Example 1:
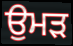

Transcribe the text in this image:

ਉਮੜ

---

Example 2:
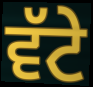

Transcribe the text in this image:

ਵੱਟੇ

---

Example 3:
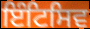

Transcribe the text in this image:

ਇੰਟਿਸਿਵ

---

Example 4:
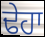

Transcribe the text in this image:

ਢੇਹਾ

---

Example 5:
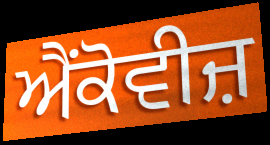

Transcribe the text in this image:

ਐਂਕੋਵੀਜ਼